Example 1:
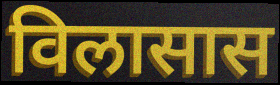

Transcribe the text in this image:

विलासास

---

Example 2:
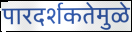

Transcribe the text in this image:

पारदर्शकतेमुळे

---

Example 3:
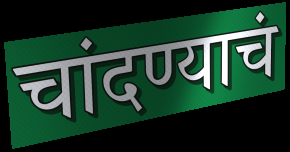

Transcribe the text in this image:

चांदण्याचं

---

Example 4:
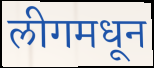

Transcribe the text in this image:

लीगमधून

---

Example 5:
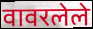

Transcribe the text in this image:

वावरलेले